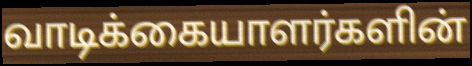
வாடிக்கையாளர்களின்